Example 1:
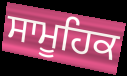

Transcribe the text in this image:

ਸਾਮੂਹਿਕ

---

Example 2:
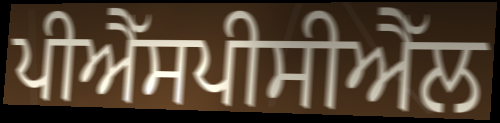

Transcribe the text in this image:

ਪੀਐੱਸਪੀਸੀਐੱਲ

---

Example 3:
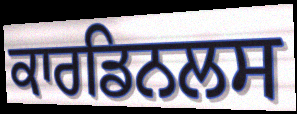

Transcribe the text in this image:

ਕਾਰਡਿਨਲਸ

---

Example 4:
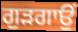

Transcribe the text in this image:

ਗੁੜਗਾਉਂ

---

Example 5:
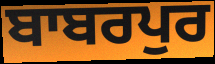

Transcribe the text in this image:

ਬਾਬਰਪੁਰ